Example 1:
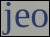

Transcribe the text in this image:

jeo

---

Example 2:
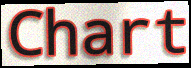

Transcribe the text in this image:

Chart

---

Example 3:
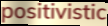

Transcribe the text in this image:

positivistic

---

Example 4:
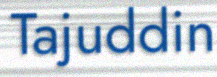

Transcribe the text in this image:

Tajuddin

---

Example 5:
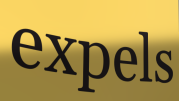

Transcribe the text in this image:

expels